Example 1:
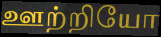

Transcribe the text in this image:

ஊற்றியோ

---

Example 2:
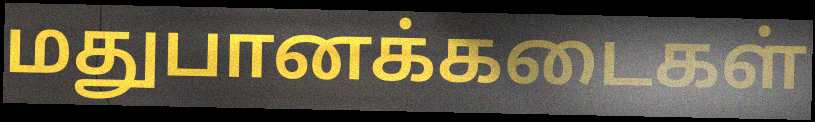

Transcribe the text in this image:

மதுபானக்கடைகள்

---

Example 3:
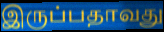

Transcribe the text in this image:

இருப்பதாவது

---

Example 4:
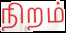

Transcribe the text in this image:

நிறம்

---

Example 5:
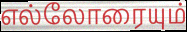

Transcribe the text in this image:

எல்லோரையும்